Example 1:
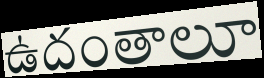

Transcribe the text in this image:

ఉదంతాలూ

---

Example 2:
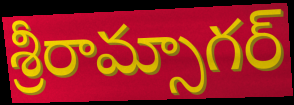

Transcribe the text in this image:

శ్రీరామ్సాగర్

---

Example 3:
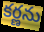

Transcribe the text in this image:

కర్ణను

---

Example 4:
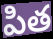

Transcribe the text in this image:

పిత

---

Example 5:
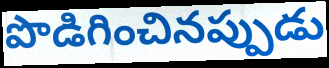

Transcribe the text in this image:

పొడిగించినప్పుడు